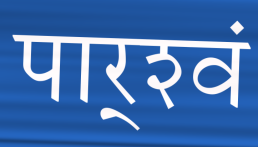
पार्श्वं